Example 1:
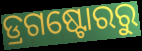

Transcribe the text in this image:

ଡ୍ରଗଷ୍ଟୋରରୁ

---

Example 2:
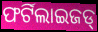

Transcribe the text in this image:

ଫର୍ଟିଲାଇଜଡ୍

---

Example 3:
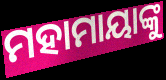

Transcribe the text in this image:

ମହାମାୟାଙ୍କୁ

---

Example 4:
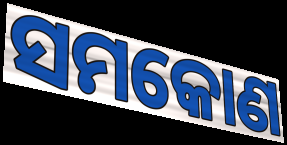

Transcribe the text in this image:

ସମକୋଣ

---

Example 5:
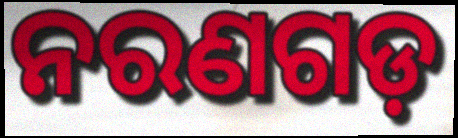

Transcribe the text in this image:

ନରଣଗଡ଼